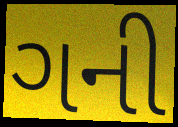
ગની